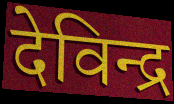
देविन्द्र